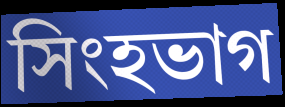
সিংহভাগ